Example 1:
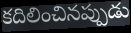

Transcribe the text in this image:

కదిలించినప్పుడు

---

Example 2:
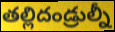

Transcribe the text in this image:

తల్లిదండ్రుల్నీ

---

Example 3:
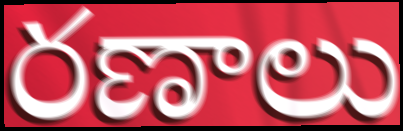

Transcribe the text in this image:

రణాలు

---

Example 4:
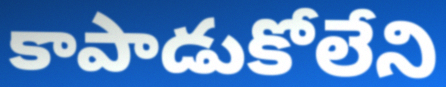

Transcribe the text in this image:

కాపాడుకోలేని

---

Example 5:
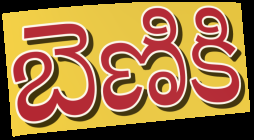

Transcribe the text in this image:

బెణికి